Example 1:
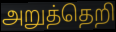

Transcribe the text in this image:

அறுத்தெறி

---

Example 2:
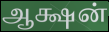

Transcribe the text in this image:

ஆக்ஷன்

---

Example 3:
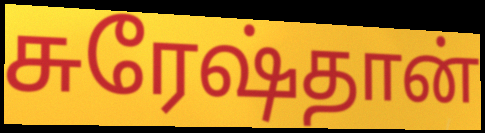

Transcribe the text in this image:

சுரேஷ்தான்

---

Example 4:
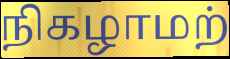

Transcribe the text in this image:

நிகழாமற்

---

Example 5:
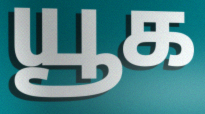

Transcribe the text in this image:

யூக